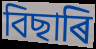
বিছাৰি